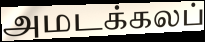
அமடக்கலப்